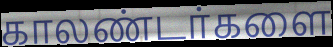
காலண்டர்களை